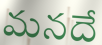
మనదే